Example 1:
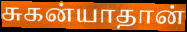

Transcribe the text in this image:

சுகன்யாதான்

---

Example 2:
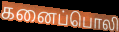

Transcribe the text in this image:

கனைப்பொலி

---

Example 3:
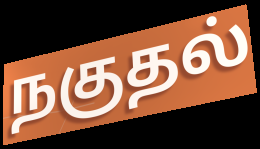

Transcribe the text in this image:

நகுதல்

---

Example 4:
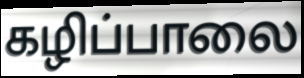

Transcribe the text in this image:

கழிப்பாலை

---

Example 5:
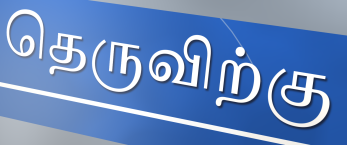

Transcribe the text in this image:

தெருவிற்கு